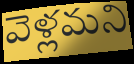
వెళ్లమని